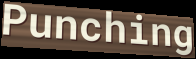
Punching